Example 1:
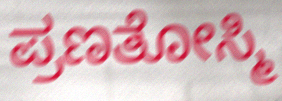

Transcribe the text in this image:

ಪ್ರಣತೋಸ್ಮಿ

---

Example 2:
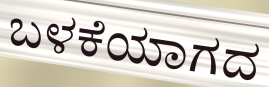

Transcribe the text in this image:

ಬಳಕೆಯಾಗದ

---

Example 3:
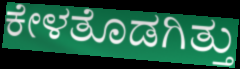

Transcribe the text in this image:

ಕೇಳತೊಡಗಿತ್ತು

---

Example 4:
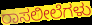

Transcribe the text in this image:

ರಾಸಲೀಲೆಗಳು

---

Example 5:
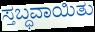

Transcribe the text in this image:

ಸ್ತಬ್ಧವಾಯಿತು